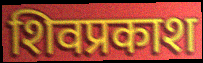
शिवप्रकाश